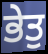
ਭੇਤੁ